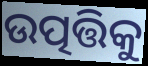
ଉତ୍ପତ୍ତିକୁ